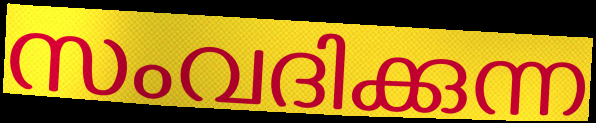
സംവദിക്കുന്ന